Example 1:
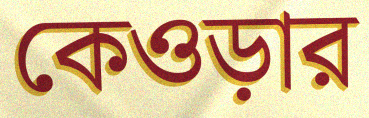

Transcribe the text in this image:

কেওড়ার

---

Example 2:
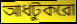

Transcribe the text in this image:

আধটুকরো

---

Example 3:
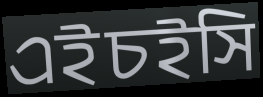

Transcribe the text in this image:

এইচইসি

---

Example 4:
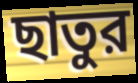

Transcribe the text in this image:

ছাতুর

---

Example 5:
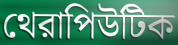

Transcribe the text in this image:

থেরাপিউটিক